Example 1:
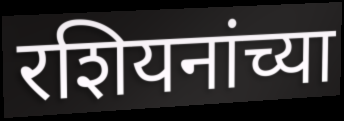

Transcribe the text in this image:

रशियनांच्या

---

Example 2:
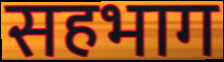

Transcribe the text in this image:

सहभाग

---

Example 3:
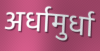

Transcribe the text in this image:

अर्धामुर्धा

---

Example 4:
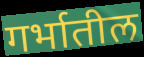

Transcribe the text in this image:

गर्भातील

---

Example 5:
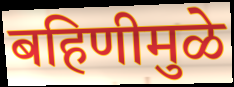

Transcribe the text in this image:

बहिणीमुळे